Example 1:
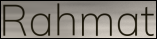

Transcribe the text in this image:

Rahmat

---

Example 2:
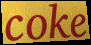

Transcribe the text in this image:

coke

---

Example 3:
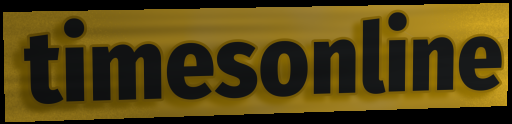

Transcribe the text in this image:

timesonline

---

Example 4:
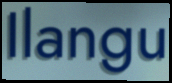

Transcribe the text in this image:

Ilangu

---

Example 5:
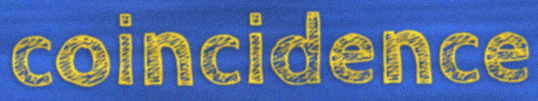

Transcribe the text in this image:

coincidence